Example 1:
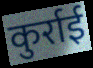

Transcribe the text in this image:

कुर्राई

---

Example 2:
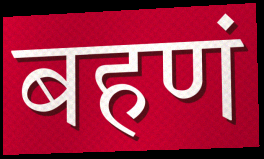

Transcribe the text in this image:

बहणं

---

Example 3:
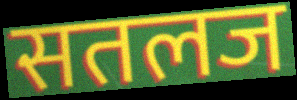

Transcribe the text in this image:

सतलज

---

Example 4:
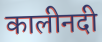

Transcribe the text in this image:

कालीनदी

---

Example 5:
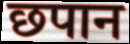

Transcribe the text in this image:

छपान